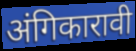
अंगिकारावी